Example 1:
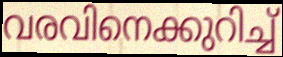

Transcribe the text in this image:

വരവിനെക്കുറിച്ച്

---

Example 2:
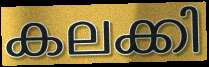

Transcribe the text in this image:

കലക്കി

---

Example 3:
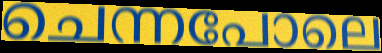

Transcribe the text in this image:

ചെന്നപോലെ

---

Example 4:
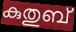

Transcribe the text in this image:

കുതുബ്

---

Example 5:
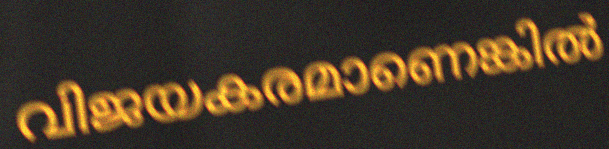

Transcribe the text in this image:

വിജയകരമാണെങ്കിൽ